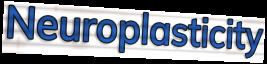
Neuroplasticity